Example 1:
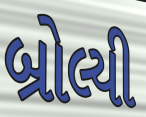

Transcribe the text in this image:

બ્રોલ્યી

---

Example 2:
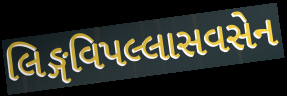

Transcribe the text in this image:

લિઙ્ગવિપલ્લાસવસેન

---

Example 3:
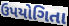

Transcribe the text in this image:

ઉપયોગિતા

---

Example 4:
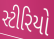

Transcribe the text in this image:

સ્ટીરિયો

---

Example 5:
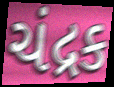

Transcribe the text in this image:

ચંદ્રક